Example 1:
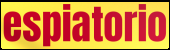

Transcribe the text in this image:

espiatorio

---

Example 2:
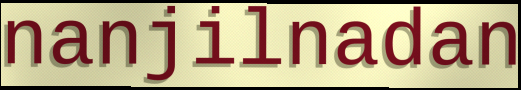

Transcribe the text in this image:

nanjilnadan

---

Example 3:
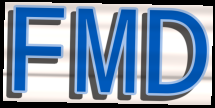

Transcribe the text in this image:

FMD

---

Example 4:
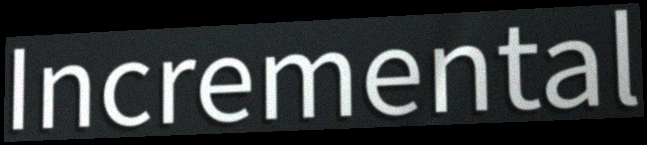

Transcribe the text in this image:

Incremental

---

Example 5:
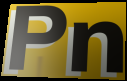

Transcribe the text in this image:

Pn